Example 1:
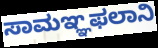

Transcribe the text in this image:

ಸಾಮಞ್ಞಫಲಾನಿ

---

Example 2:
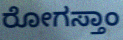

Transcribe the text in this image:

ರೋಗಸ್ತಾಂ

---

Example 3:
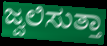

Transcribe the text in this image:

ಜ್ವಲಿಸುತ್ತಾ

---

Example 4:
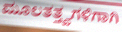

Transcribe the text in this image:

ಮೂಲತತ್ತ್ವಗಳಿಗಾಗಿ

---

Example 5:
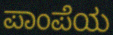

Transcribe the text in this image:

ಪಾಂಪೆಯ